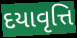
દયાવૃત્તિ